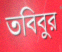
তবিবুর